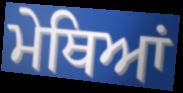
ਮੇਥਿਆਂ